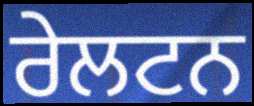
ਰੇਲਟਨ